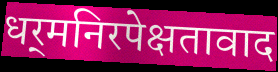
धर्मनिरपेक्षतावाद